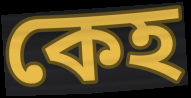
কেহ